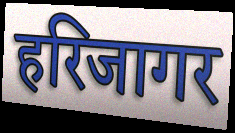
हरिजागर